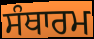
ਸੰਥਾਰਮ